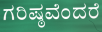
ಗರಿಷ್ಠವೆಂದರೆ